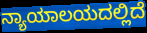
ನ್ಯಾಯಾಲಯದಲ್ಲಿದೆ